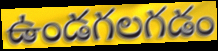
ఉండగలగడం